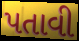
પતાવી